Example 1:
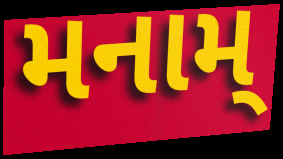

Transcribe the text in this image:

મનામ્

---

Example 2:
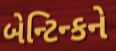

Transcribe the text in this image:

બેન્ટિન્કને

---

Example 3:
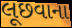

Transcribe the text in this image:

લૂછવાના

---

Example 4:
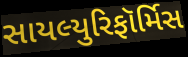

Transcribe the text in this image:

સાયલ્યુરિફૉર્મિસ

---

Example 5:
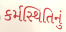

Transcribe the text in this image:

કર્મસ્થિતિનું